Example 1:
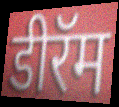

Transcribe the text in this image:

डीरॅम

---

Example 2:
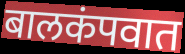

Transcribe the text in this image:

बालकंपवात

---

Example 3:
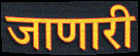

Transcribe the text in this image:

जाणारी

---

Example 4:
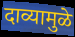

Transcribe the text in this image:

दाव्यामुळे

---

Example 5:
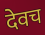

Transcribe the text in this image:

देवच